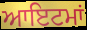
ਆਇਟਮਾਂ